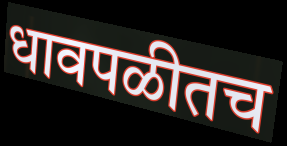
धावपळीतच